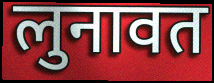
लुनावत